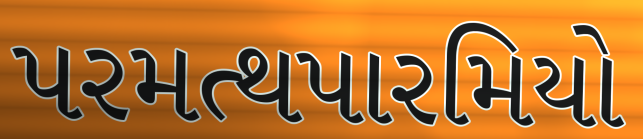
પરમત્થપારમિયો